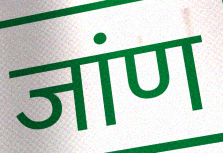
जांण